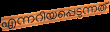
എന്നറിയപ്പെടുന്നത്